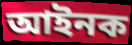
আইনক